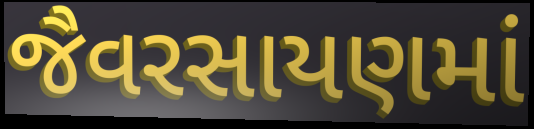
જૈવરસાયણમાં